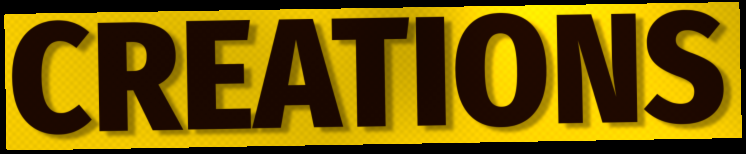
CREATIONS